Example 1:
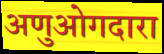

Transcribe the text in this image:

अणुओगदारा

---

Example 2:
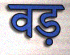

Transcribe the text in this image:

वड़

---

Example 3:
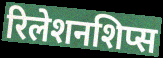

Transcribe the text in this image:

रिलेशनशिप्स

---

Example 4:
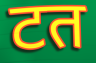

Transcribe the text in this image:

टत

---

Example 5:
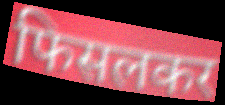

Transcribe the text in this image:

फिसलकर